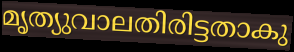
മൃത്യുവാലതിരിട്ടതാകു